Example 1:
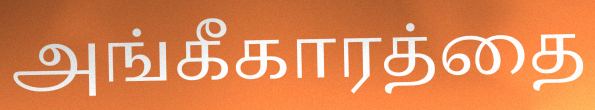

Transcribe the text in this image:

அங்கீகாரத்தை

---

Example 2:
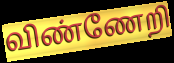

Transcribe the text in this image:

விண்ணேறி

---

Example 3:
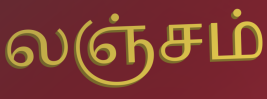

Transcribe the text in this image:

லஞ்சம்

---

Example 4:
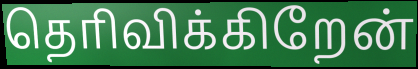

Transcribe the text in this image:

தெரிவிக்கிறேன்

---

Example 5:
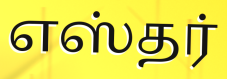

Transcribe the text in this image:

எஸ்தர்